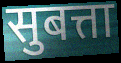
सुबत्ता